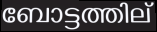
ബോട്ടത്തില്